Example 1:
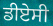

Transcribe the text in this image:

ਡੀਏਸੀ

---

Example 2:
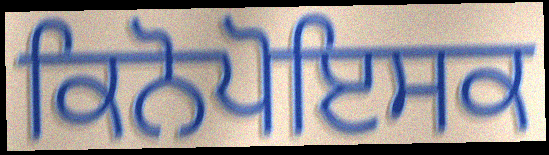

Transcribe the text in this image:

ਕਿਨੋਪੋਇਸਕ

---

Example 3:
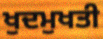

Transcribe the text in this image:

ਖੁਦਮੁਖਤੀ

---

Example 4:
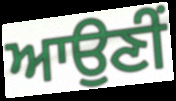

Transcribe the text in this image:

ਆਉਣੀੰ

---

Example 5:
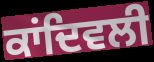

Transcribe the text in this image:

ਕਾਂਦਿਵਲੀ